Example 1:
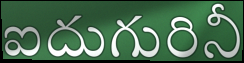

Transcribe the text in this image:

ఐదుగురినీ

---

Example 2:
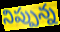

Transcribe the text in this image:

నిప్పున్న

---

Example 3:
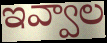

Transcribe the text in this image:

ఇవ్వాల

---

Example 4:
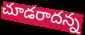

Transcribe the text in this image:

చూడరాదన్న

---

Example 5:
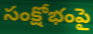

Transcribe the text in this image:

సంక్షోభంపై